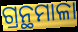
ଗ୍ରନ୍ଥମାଳା